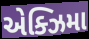
એક્ઝિમા